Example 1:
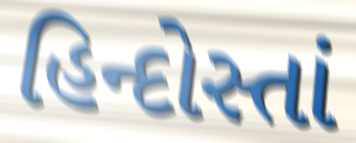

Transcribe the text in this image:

હિન્દોસ્તાં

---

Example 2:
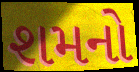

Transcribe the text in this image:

શમનો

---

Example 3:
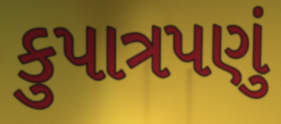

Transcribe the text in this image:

કુપાત્રપણું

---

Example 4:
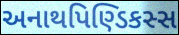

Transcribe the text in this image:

અનાથપિણ્ડિકસ્સ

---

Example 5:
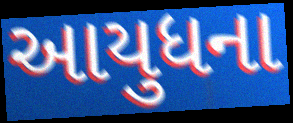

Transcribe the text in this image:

આયુધના